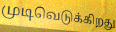
முடிவெடுக்கிறது